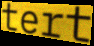
tert